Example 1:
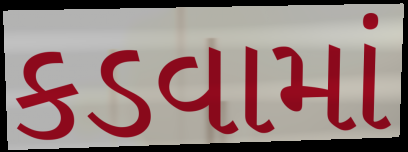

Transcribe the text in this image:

કડવામાં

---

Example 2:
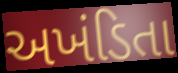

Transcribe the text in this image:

અખંડિતા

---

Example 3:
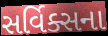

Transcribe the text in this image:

સર્વિક્સના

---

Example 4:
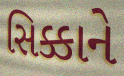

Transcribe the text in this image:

સિક્કાને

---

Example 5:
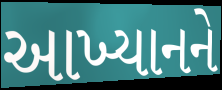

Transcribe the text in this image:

આખ્યાનને